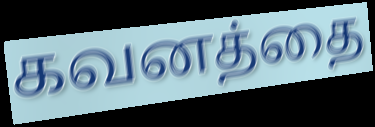
கவனத்தை